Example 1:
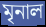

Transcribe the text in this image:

মৃনাল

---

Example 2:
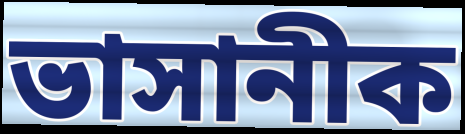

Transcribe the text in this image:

ভাসানীক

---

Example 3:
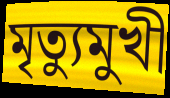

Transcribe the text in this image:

মৃত্যুমুখী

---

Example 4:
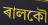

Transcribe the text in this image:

ৰালকৌ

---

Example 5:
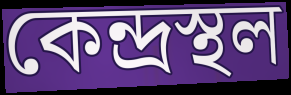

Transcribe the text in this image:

কেন্দ্ৰস্থল